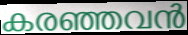
കരഞ്ഞവൻ